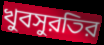
খুবসুরতির